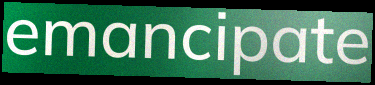
emancipate